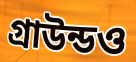
গ্রাউন্ডও